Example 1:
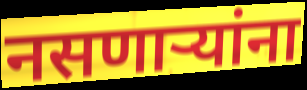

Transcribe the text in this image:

नसणाऱ्यांना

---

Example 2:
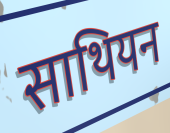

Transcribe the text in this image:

साथियन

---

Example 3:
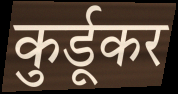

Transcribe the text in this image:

कुर्डूकर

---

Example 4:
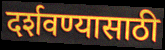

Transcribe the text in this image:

दर्शवण्यासाठी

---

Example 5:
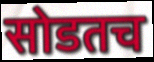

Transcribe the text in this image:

सोडतच